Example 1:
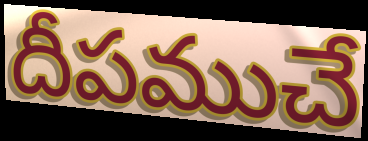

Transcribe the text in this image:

దీపముచే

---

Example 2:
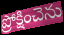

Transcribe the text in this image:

ప్రోక్షించెను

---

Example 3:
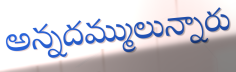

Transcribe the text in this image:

అన్నదమ్ములున్నారు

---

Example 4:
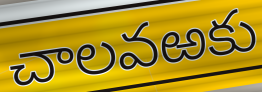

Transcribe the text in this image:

చాలవఱకు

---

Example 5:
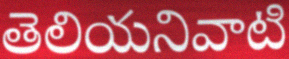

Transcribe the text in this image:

తెలియనివాటి